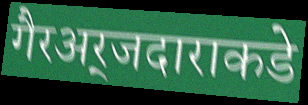
गैरअर्जदाराकडे